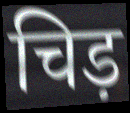
चिड़